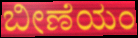
ಬೀಣೆಯಂ